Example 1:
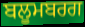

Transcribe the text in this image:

ਬਲੂਮਬਰਗ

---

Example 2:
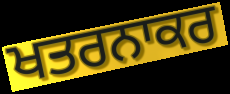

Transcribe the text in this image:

ਖਤਰਨਾਕਰ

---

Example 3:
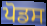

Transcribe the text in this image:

ਪੋਡਸ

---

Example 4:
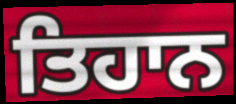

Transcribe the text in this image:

ਤਿਹਾਨ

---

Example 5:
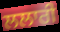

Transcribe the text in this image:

ਲਲਾਰੀ